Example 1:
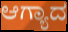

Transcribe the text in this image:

ಆಗ್ಯಾದ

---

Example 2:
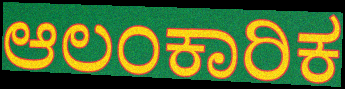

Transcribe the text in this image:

ಆಲಂಕಾರಿಕ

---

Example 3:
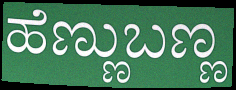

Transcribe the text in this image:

ಹೆಣ್ಣುಬಣ್ಣ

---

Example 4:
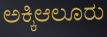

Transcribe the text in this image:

ಅಕ್ಕಿಆಲೂರು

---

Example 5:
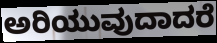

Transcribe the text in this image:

ಅರಿಯುವುದಾದರೆ